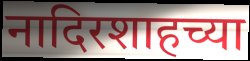
नादिरशाहच्या